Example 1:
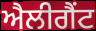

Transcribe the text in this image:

ਐਲੀਗੈਂਟ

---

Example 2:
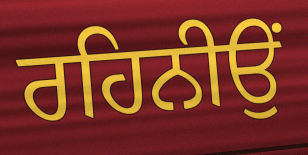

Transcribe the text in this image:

ਰਹਿਨੀਉਂ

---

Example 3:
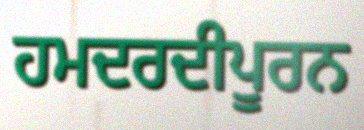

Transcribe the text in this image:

ਹਮਦਰਦੀਪੂਰਨ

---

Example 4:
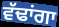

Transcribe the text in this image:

ਵੱਢਾਂਗਾ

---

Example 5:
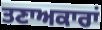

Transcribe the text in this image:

ਤਣਾਅਕਾਰਾਂ